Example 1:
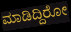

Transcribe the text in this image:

ಮಾಡಿದ್ದಿರೋ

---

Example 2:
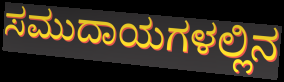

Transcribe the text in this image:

ಸಮುದಾಯಗಳಲ್ಲಿನ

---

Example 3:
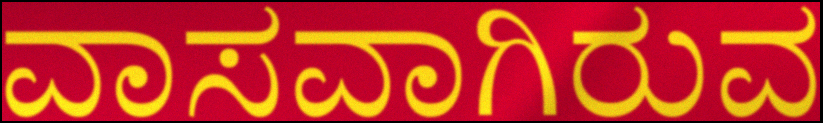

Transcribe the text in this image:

ವಾಸವಾಗಿರುವ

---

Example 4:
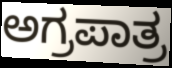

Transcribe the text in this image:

ಅಗ್ರಪಾತ್ರ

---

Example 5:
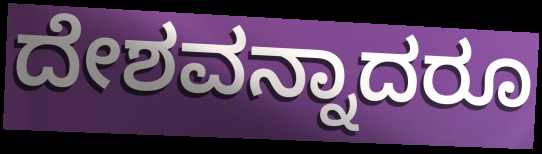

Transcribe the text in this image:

ದೇಶವನ್ನಾದರೂ